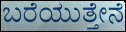
ಬರೆಯುತ್ತೇನೆ